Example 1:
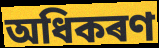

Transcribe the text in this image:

অধিকৰণ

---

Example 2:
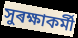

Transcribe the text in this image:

সুৰক্ষাকৰ্মী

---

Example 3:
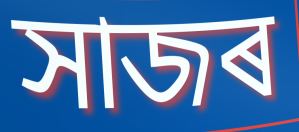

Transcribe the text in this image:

সাজৰ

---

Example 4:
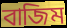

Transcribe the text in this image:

বাজিম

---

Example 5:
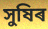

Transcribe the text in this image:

সুষিৰ